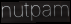
nutpam